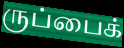
ருப்பைக்